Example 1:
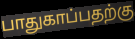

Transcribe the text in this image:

பாதுகாப்பதற்கு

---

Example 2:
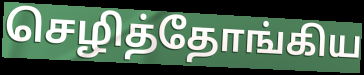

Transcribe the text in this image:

செழித்தோங்கிய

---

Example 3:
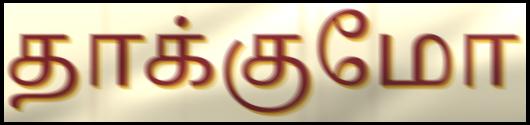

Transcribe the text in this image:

தாக்குமோ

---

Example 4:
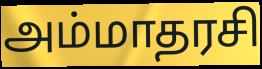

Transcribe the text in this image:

அம்மாதரசி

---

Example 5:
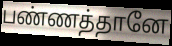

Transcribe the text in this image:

பண்ணத்தானே